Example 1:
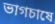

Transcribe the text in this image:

ভাগচাষে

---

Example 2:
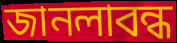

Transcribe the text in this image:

জানলাবন্ধ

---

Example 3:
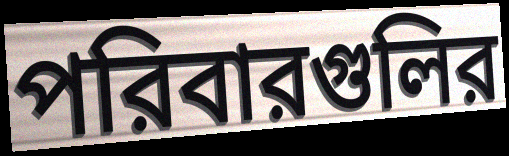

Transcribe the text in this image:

পরিবারগুলির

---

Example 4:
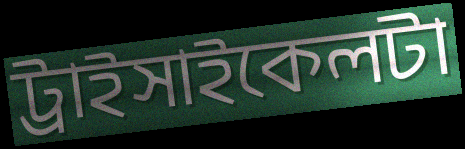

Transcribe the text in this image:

ট্রাইসাইকেলটা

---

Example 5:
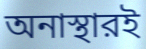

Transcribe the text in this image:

অনাস্থারই